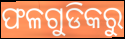
ଫଳଗୁଡିକରୁ